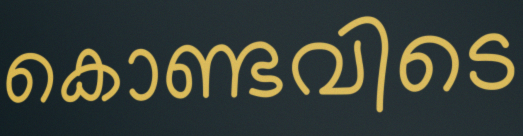
കൊണ്ടവിടെ